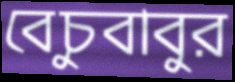
বেচুবাবুর